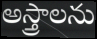
అస్త్రాలను